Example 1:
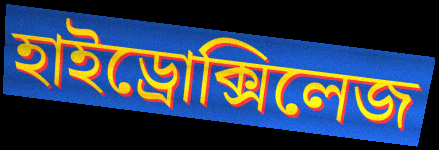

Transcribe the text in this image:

হাইড্রোক্সিলেজ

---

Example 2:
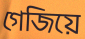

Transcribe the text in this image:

গেজিয়ে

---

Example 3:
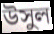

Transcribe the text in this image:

উসুল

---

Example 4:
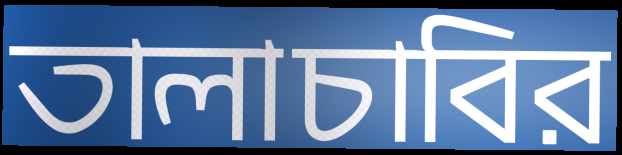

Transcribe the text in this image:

তালাচাবির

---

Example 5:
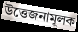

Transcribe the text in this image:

উত্তেজনামূলক